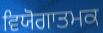
ਵਿਯੋਗਾਤਮਕ